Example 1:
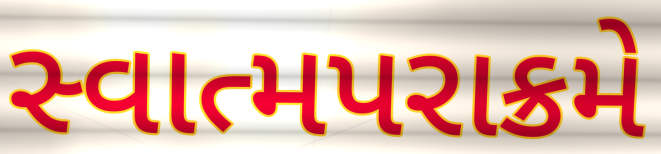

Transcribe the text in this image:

સ્વાત્મપરાક્રમે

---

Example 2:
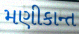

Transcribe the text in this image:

મણીકાન્ત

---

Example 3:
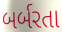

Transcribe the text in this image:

બર્બરતા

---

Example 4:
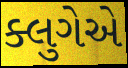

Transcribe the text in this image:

ક્લુગેએ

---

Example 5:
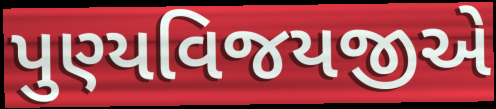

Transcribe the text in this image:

પુણ્યવિજયજીએ